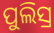
ପୁଲିସ୍ର